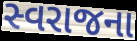
સ્વરાજના